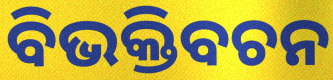
ବିଭକ୍ତିବଚନ